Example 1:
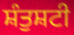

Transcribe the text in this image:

ਸ਼ੰਤੁਸ਼ਟੀ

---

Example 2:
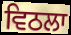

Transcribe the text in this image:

ਵਿਠਲਾ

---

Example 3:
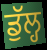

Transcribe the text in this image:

ਡੁੱਲ੍ਹ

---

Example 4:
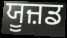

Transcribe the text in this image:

ਯੂਜ਼ਡ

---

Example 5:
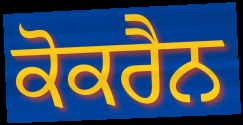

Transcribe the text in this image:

ਕੋਕਰੈਨ